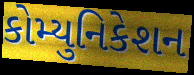
કોમ્યુનિકેશન